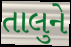
તાલુને